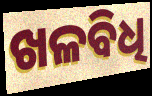
ଖଳବିଧି